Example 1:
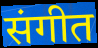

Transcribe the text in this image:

संगीत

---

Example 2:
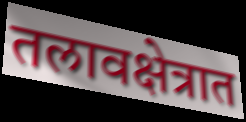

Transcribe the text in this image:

तलावक्षेत्रात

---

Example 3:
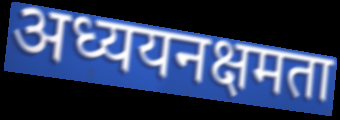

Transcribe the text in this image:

अध्ययनक्षमता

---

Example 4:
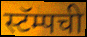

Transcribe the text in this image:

स्टॅम्पची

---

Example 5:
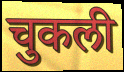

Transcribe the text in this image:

चुकली